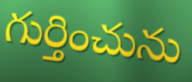
గుర్తించును